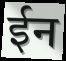
ईन